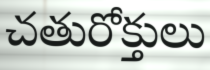
చతురోక్తులు